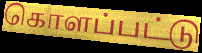
கொளப்பட்டு